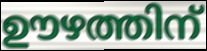
ഊഴത്തിന്